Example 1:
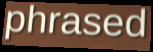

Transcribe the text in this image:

phrased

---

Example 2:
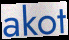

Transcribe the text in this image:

akot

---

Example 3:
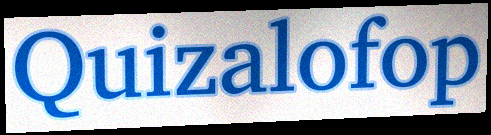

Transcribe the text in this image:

Quizalofop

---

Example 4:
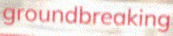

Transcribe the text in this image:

groundbreaking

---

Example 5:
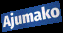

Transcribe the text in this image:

Ajumako